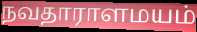
நவதாராளமயம்